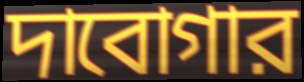
দাবোগার